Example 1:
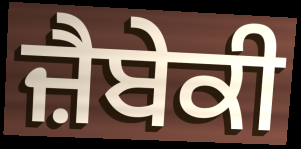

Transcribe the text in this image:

ਜ਼ੈਬੇਕੀ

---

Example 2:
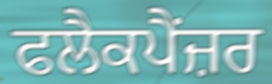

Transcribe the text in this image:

ਫਲੈਕਪੈਂਜ਼ਰ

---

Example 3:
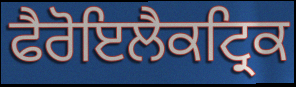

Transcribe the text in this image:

ਫੈਰੋਇਲੈਕਟ੍ਰਿਕ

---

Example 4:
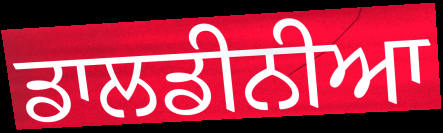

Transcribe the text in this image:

ਡਾਲਡੀਨੀਆ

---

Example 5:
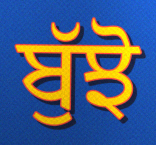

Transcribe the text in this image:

ਬੁੱਝੋ